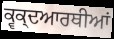
ਕ੍ਵਕ੍ਦਆਰਥੀਆਂ